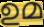
ഉമ